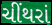
ચીંથરાં